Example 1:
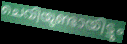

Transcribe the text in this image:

ചെവിയുണ്ടായിട്ടും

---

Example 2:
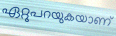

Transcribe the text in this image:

ഏറ്റുപറയുകയാണ്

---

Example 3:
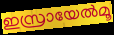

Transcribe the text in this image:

ഇസ്രായേൽമൂ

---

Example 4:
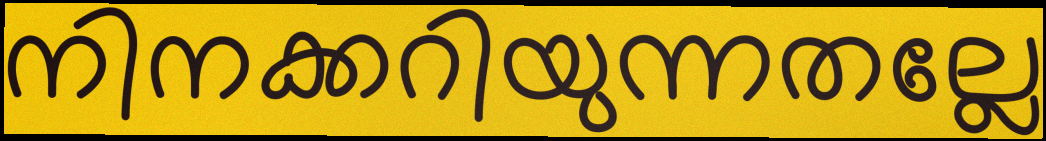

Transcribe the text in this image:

നിനക്കറിയുന്നതല്ലേ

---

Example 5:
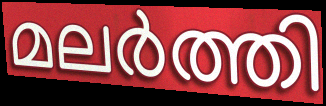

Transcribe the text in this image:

മലർത്തി